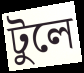
টুলে